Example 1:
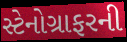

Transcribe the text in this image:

સ્ટેનોગ્રાફરની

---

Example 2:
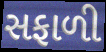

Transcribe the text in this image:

સફાળી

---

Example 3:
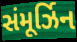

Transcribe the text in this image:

સંમૂર્ઝિન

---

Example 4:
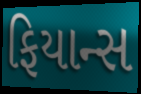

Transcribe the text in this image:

ફિયાન્સ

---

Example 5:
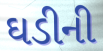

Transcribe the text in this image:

ઘડીની